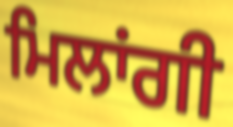
ਮਿਲਾਂਗੀ